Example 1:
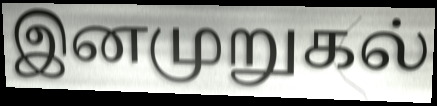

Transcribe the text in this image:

இனமுறுகல்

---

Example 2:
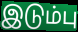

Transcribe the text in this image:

இடும்பு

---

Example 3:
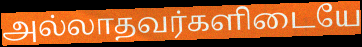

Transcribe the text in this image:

அல்லாதவர்களிடையே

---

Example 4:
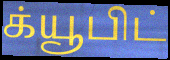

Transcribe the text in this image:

க்யூபிட்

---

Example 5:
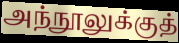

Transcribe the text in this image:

அந்நூலுக்குத்